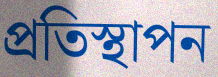
প্ৰতিস্থাপন